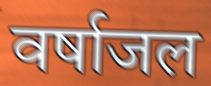
वर्षाजल